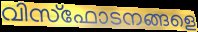
വിസ്ഫോടനങ്ങളെ